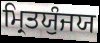
ਮ੍ਰਿਤਯੁੰਜਯ